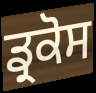
ਡ੍ਰਕੋਸ